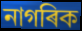
নাগৰিক